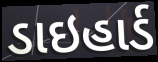
ડાઇહાર્ડ